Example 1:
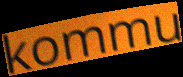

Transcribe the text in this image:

kommu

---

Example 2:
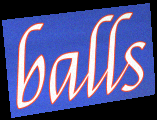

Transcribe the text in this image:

balls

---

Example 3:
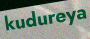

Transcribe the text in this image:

kudureya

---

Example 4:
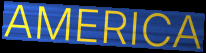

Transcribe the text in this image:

AMERICA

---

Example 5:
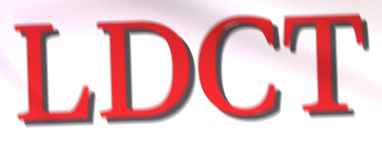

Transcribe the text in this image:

LDCT